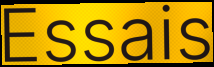
Essais